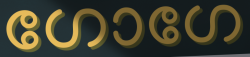
ഗോഗേ